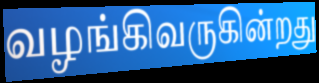
வழங்கிவருகின்றது